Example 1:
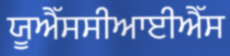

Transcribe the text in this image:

ਯੂਐੱਸਸੀਆਈਐੱਸ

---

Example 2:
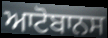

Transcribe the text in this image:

ਆਟੋਬਾਨਸ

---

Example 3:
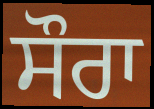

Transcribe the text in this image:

ਸੌਰਾ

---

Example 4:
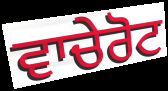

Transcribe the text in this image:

ਵਾਚੇਰੋਟ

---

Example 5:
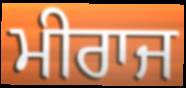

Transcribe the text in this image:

ਮੀਰਾਜ